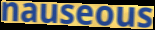
nauseous